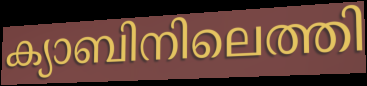
ക്യാബിനിലെത്തി